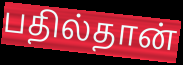
பதில்தான்